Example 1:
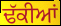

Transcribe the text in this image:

ਢੱਕੀਆਂ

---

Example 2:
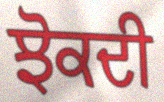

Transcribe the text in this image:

ਝੋਕਦੀ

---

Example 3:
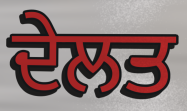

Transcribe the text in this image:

ਦੇਲਤ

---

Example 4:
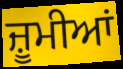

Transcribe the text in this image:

ਜ਼ੂਮੀਆਂ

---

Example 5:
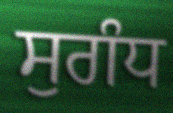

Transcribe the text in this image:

ਸੁਗੰਧ